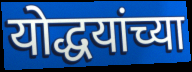
योद्धयांच्या